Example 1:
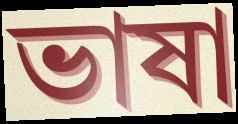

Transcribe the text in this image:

ভাষা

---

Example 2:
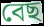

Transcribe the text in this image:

বেছ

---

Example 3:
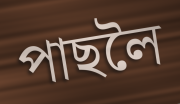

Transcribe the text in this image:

পাছলৈ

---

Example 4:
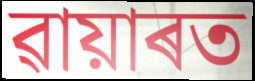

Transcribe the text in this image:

ৱায়াৰত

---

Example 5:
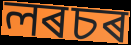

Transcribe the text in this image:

লৰচৰ